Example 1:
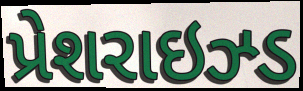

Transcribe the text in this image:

પ્રેશરાઇઝ્ડ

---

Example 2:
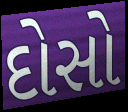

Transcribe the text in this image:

દોસો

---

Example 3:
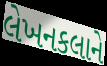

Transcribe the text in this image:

લેખનકલાને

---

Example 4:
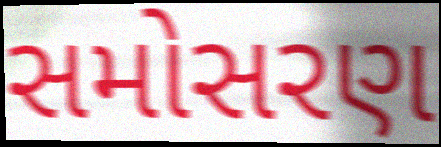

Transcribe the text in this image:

સમોસરણ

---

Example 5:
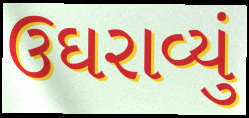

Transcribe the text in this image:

ઉઘરાવ્યું